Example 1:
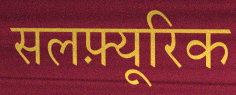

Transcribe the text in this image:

सलफ़्यूरिक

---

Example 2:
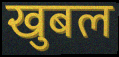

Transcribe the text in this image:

खुबल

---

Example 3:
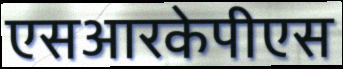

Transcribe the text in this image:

एसआरकेपीएस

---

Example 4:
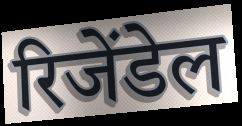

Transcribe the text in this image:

रिजेंडेल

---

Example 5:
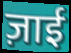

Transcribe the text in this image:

ज़ाई